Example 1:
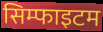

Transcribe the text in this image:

सिम्फाइटम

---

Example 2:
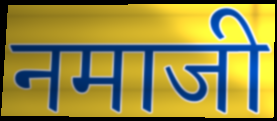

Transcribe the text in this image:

नमाजी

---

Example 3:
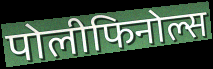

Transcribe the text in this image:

पोलीफिनोल्स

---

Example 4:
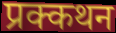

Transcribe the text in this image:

प्रक्कथन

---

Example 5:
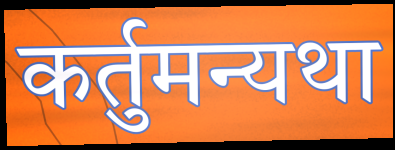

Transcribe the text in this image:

कर्तुमन्यथा